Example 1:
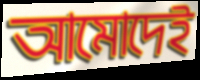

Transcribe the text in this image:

আমোদেই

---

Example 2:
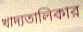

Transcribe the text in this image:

খাদ্যতালিকার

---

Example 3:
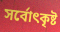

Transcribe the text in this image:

সর্বোৎকৃষ্ট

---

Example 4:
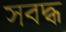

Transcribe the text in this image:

সবদ্ধ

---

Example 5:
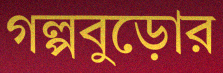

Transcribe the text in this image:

গল্পবুড়োর